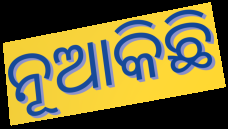
ନୂଆକିଛି